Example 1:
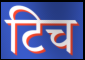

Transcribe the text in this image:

टिच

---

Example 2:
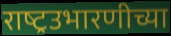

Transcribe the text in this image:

राष्ट्रउभारणीच्या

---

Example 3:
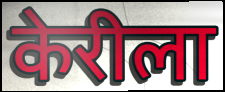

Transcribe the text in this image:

केरीला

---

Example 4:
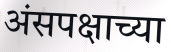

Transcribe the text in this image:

अंसपक्षाच्या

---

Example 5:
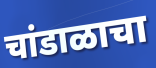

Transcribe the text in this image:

चांडाळाचा